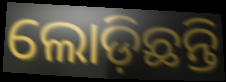
ଲୋଡ଼ିଛନ୍ତି